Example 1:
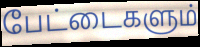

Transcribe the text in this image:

பேட்டைகளும்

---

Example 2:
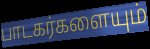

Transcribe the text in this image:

பாடகர்களையும்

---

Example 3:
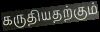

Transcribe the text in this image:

கருதியதற்கும்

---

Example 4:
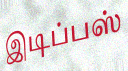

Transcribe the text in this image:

இடிப்பஸ்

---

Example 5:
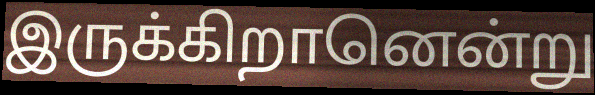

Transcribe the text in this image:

இருக்கிறானென்று